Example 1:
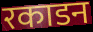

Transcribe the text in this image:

रकाडन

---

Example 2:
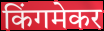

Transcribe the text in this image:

किंगमेकर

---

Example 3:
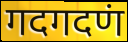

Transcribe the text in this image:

गदगदणं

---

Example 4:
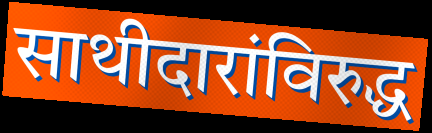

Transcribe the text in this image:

साथीदारांविरुद्ध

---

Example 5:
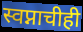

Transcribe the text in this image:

स्वप्नाचीही